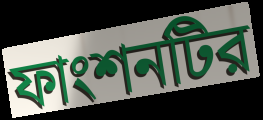
ফাংশনটির